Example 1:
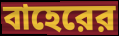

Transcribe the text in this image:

বাহেরের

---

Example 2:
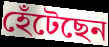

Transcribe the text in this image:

হেঁটেছেন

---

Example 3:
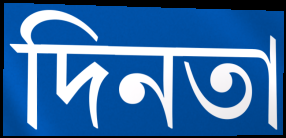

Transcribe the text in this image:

দিনতা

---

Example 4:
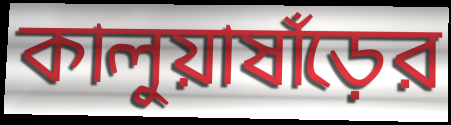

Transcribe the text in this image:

কালুয়াষাঁড়ের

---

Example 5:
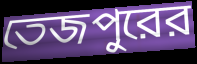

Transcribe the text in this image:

তেজপুরের